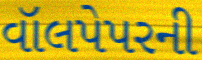
વૉલપેપરની